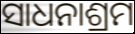
ସାଧନାଶ୍ରମ